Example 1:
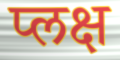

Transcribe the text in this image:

प्लक्ष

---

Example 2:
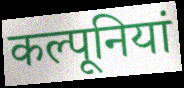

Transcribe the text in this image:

कल्पूनियां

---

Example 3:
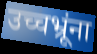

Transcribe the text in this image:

उच्चभ्रूंना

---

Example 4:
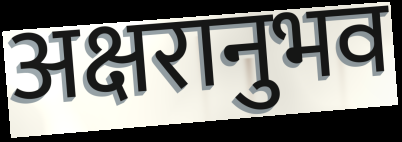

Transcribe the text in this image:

अक्षरानुभव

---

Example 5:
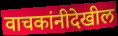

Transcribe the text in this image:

वाचकांनीदेखील